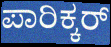
ಪಾರಿಕ್ಕರ್